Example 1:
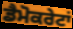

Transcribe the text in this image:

ਡੈਮੋਕਰੇਟਾਂ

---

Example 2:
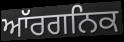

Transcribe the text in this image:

ਆੱਰਗਨਿਕ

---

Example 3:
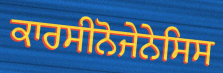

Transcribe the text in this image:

ਕਾਰਸੀਨੋਜੇਨੇਸਿਸ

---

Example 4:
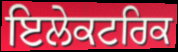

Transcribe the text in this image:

ਇਲੇਕਟਰਿਕ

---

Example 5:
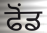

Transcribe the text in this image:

ਫੋਂਡ